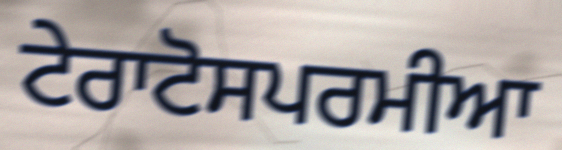
ਟੇਰਾਟੋਸਪਰਮੀਆ